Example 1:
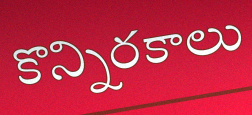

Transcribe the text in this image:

కొన్నిరకాలు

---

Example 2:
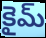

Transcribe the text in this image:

కైమ్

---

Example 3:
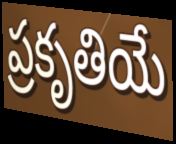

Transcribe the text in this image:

ప్రకృతియే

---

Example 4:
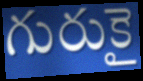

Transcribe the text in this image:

గురుకై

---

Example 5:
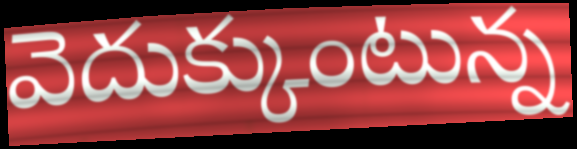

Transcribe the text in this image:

వెదుక్కుంటున్న